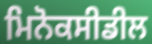
ਮਿਨੋਕਸੀਡੀਲ